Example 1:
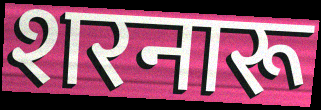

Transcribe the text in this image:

शरनारू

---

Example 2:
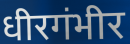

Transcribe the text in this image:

धीरगंभीर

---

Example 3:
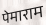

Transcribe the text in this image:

पेमाराम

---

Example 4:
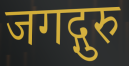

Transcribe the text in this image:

जगद्गुरु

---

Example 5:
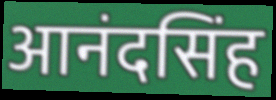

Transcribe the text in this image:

आनंदसिंह